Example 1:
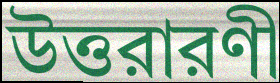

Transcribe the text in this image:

উত্তরারণী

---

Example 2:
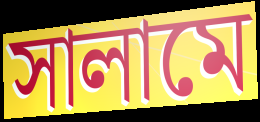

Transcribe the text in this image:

সালামে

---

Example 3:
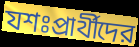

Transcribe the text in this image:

যশঃপ্রার্থীদের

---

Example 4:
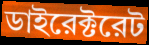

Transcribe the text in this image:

ডাইরেক্টরেট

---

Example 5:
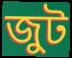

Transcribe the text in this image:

জুট